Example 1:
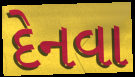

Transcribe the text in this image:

દેનવા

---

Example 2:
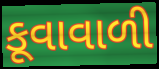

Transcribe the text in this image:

કૂવાવાળી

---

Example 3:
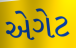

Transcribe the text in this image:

એગેટ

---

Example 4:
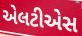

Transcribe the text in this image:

એલટીએસ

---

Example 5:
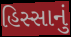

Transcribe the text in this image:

હિસ્સાનું